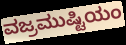
ವಜ್ರಮುಷ್ಟಿಯಂ